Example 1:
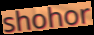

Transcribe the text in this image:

shohor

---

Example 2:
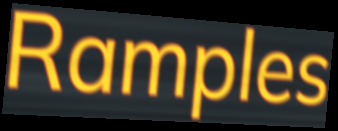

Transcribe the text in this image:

Ramples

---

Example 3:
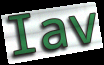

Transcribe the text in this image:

Iav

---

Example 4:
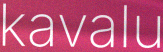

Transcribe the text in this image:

kavalu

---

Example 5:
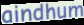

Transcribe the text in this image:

aindhum